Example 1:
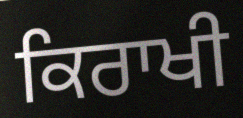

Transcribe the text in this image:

ਕਿਰਾਖੀ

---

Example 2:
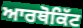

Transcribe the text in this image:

ਆਰਥੋਕਿੱਟ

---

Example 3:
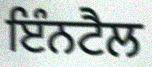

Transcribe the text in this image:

ਇੰਨਟੈਲ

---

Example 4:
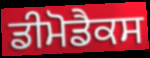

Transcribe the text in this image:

ਡੀਮੋਡੈਕਸ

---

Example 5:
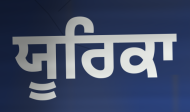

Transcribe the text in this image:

ਯੂਰਿਕਾ